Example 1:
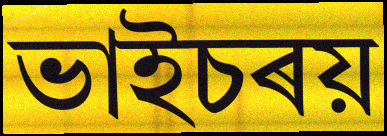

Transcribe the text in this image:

ভাইচৰয়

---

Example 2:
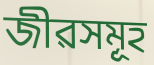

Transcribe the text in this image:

জীৱসমূহ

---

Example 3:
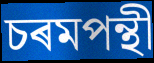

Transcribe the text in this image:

চৰমপন্থী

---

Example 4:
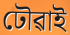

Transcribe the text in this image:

ঢৌৱাই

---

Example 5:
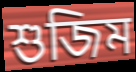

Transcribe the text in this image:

শুজিম